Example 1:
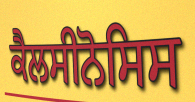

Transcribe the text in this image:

ਕੈਲਸੀਨੋਸਿਸ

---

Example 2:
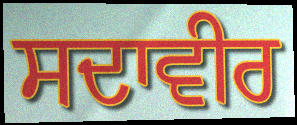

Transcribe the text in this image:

ਸਦਾਵੀਰ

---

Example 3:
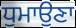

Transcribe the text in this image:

ਧੁਮਾਉਣਾ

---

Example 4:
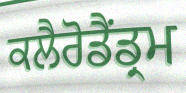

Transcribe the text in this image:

ਕਲੈਰੋਡੈਂਡ੍ਰਮ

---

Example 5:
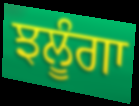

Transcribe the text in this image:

ਝਲੂੰਗਾ